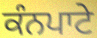
ਕੰਨਪਾਟੇ